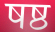
षष्ठ